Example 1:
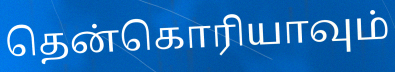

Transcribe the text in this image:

தென்கொரியாவும்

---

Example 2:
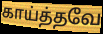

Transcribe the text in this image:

காய்த்தவே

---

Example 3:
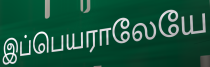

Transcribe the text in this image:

இப்பெயராலேயே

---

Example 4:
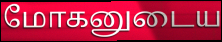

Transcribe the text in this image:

மோகனுடைய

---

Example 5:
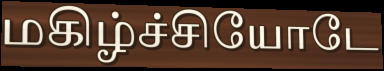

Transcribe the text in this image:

மகிழ்ச்சியோடே